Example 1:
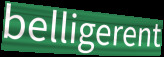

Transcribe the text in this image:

belligerent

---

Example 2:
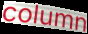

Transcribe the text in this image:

column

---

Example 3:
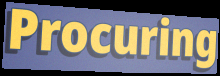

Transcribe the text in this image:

Procuring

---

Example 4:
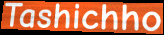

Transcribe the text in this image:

Tashichho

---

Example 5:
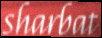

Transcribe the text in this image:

sharbat